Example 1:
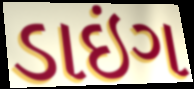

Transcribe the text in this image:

ડાઇંગ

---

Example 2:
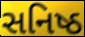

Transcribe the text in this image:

સનિષ્ઠ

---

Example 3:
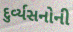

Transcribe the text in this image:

દુર્વ્યસનોની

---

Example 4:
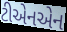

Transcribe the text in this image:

ટીએનએન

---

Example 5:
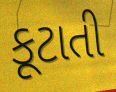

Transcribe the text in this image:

કૂટાતી